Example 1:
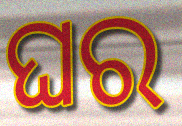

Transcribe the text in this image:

ଘର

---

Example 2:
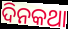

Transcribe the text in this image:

ଦିନକଥା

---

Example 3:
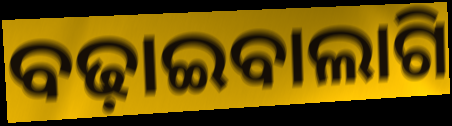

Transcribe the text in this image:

ବଢ଼ାଇବାଲାଗି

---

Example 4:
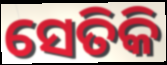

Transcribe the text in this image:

ସେତିକି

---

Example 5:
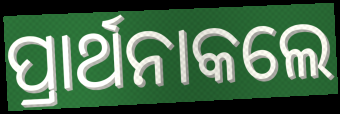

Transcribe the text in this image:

ପ୍ରାର୍ଥନାକଲେ